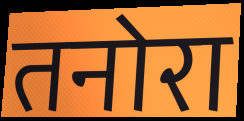
तनोरा